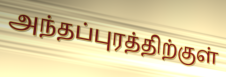
அந்தப்புரத்திற்குள்